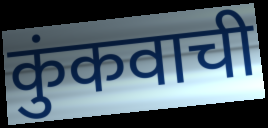
कुंकवाची